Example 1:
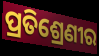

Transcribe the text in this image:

ପ୍ରତିଶ୍ରେଣୀର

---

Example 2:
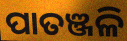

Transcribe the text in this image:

ପାତଞ୍ଜଳି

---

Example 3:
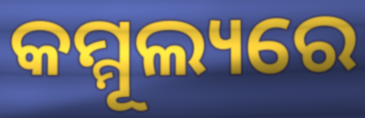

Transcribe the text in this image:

କମ୍ମୂଲ୍ୟରେ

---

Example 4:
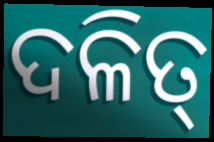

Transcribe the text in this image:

ଦଳିତ୍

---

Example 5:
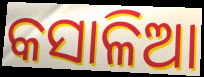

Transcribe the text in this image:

କସାଳିଆ